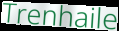
Trenhaile